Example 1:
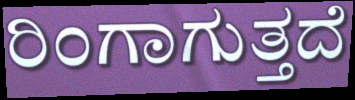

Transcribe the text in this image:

ರಿಂಗಾಗುತ್ತದೆ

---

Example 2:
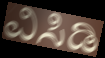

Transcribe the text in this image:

ವಿಸಿಡಿ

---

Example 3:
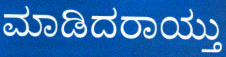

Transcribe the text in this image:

ಮಾಡಿದರಾಯ್ತು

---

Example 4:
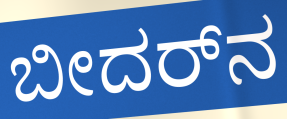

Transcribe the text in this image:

ಬೀದರ್‌ನ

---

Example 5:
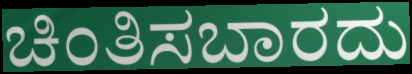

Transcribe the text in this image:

ಚಿಂತಿಸಬಾರದು